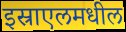
इस्राएलमधील